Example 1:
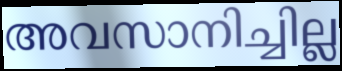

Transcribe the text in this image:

അവസാനിച്ചില്ല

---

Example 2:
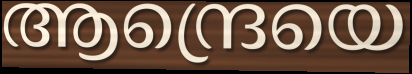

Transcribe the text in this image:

ആന്ദ്രെയെ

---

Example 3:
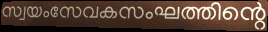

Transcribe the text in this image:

സ്വയംസേവകസംഘത്തിന്റെ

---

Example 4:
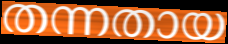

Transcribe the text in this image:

തന്നതായ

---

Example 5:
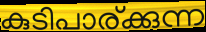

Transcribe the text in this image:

കുടിപാര്ക്കുന്ന